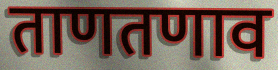
ताणतणाव